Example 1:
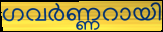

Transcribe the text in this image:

ഗവർണ്ണറായി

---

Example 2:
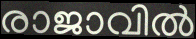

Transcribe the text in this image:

രാജാവിൽ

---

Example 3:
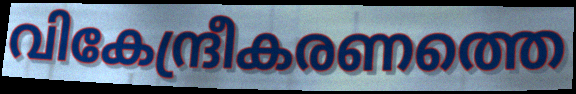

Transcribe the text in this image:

വികേന്ദ്രീകരണത്തെ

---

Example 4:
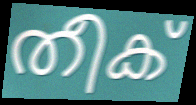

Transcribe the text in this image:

തീക്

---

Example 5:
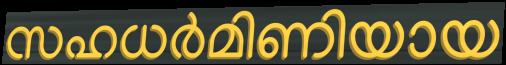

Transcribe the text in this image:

സഹധർമിണിയായ